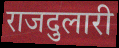
राजदुलारी